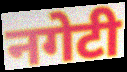
नगेटी